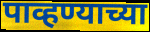
पाव्हण्याच्या